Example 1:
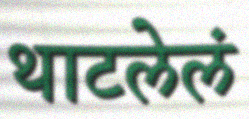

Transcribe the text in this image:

थाटलेलं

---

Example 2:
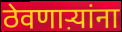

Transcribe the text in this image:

ठेवणाऱ्‍यांना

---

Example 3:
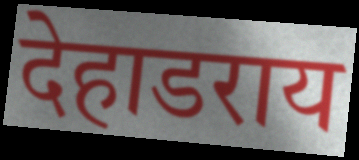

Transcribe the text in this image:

देहाडराय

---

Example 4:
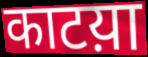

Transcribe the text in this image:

काटय़ा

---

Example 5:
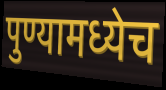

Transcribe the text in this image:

पुण्यामध्येच